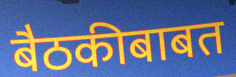
बैठकीबाबत